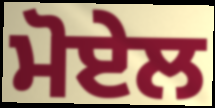
ਮੋਏਲ